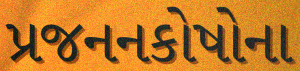
પ્રજનનકોષોના